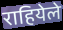
राहियेले